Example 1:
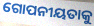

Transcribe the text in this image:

ଗୋପନୀୟତାକୁ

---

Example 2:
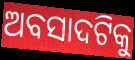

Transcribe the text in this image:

ଅବସାଦଟିକୁ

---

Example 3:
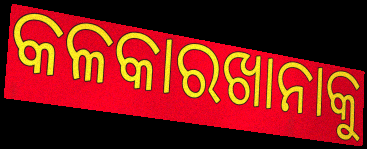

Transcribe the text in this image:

କଳକାରଖାନାକୁ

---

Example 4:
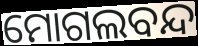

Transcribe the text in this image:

ମୋଗଲବନ୍ଦ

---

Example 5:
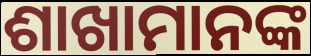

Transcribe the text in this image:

ଶାଖାମାନଙ୍କ